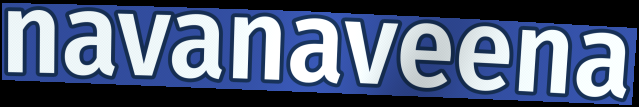
navanaveena